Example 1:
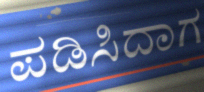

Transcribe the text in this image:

ಪಡಿಸಿದಾಗ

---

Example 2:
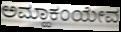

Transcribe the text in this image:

ಅಮ್ಹಾಕಂಯೇವ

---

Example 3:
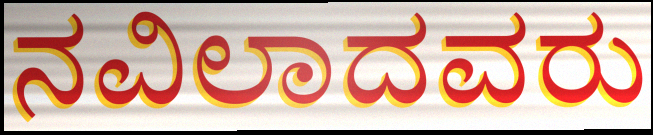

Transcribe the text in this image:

ನವಿಲಾದವರು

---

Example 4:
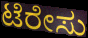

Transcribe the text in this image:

ಟೆರೇಸು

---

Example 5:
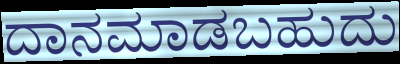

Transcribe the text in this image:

ದಾನಮಾಡಬಹುದು